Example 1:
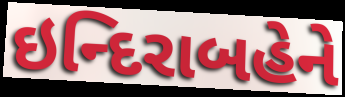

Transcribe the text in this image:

ઇન્દિરાબહેને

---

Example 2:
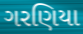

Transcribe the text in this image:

ગરણિયા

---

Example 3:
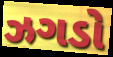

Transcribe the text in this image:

ઝગડો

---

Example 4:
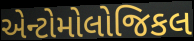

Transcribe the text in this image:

એન્ટોમોલોજિકલ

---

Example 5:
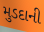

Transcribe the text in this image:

મુડદાની